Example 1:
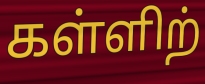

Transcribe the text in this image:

கள்ளிற்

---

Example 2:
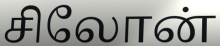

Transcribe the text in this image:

சிலோன்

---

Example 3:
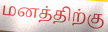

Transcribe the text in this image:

மனத்திற்கு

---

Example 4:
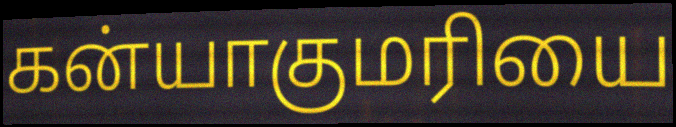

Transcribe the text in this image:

கன்யாகுமரியை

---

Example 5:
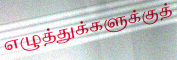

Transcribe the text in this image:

எழுத்துக்களுக்குத்